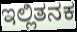
ಇಲ್ಲಿತನಕ